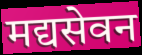
मद्यसेवन